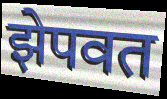
झेपवत